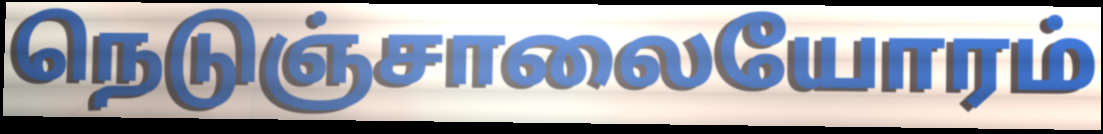
நெடுஞ்சாலையோரம்